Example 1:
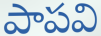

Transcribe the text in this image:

పాపవి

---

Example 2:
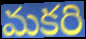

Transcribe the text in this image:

మకరి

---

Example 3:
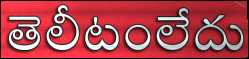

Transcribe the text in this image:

తెలీటంలేదు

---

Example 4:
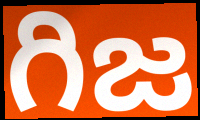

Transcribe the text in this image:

గిజ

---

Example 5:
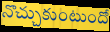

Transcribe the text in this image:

నొచ్చుకుంటుందో